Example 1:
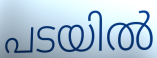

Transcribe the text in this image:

പടയിൽ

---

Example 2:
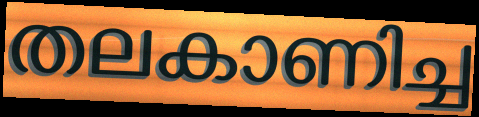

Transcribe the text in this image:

തലകാണിച്ച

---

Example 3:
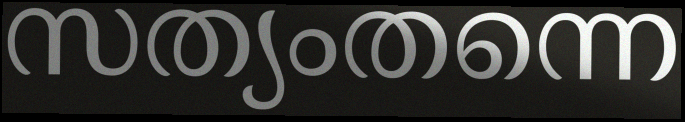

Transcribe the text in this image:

സത്യംതന്നെ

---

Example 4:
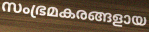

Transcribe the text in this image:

സംഭ്രമകരങ്ങളായ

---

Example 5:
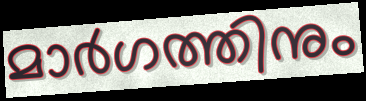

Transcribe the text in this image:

മാർഗത്തിനും